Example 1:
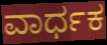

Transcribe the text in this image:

ವಾರ್ಧಕ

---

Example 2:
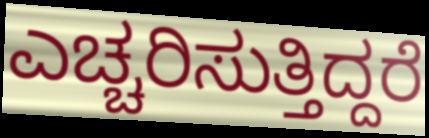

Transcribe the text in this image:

ಎಚ್ಚರಿಸುತ್ತಿದ್ದರೆ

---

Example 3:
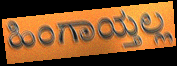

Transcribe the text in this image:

ಹಿಂಗಾಯ್ತಲ್ಲ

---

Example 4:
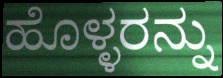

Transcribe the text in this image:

ಹೊಳ್ಳರನ್ನು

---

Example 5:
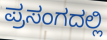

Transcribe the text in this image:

ಪ್ರಸಂಗದಲ್ಲಿ